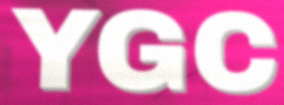
YGC